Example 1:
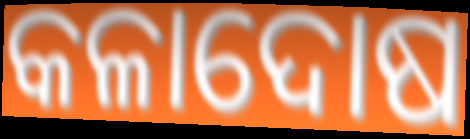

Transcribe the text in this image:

କଳାଦୋଷ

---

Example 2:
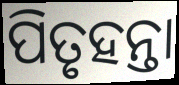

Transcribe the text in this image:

ପିତୃହନ୍ତା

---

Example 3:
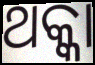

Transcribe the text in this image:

ଥକ୍କା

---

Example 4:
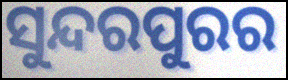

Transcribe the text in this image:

ସୁନ୍ଦରପୁରର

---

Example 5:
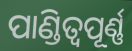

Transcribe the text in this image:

ପାଣ୍ଡିତ୍ୱପୂର୍ଣ୍ଣ